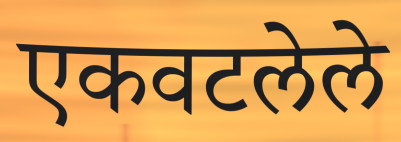
एकवटलेले